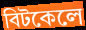
বিটকেলে